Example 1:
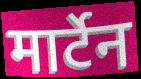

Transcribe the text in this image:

मार्टेन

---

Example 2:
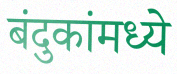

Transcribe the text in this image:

बंदुकांमध्ये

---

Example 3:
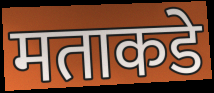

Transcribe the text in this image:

मताकडे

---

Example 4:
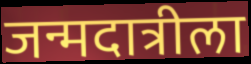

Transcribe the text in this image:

जन्मदात्रीला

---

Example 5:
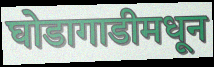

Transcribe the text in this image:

घोडागाडीमधून